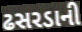
ઢસરડાની